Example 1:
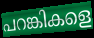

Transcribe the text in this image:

പറങ്കികളെ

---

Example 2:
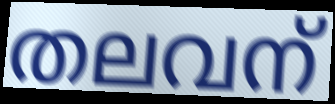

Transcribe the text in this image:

തലവന്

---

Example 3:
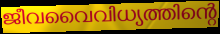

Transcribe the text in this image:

ജീവവൈവിധ്യത്തിന്റെ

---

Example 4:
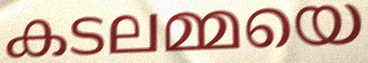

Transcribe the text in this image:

കടലമ്മയെ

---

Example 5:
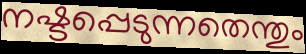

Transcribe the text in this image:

നഷ്ടപ്പെടുന്നതെന്തും